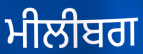
ਮੀਲੀਬਗ